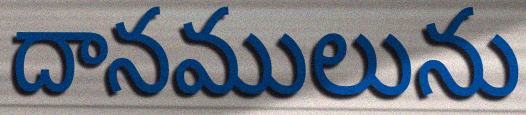
దానములును